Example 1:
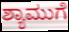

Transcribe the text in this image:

ಶ್ಯಾಮುಗೆ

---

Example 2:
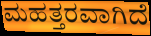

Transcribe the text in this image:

ಮಹತ್ತರವಾಗಿದೆ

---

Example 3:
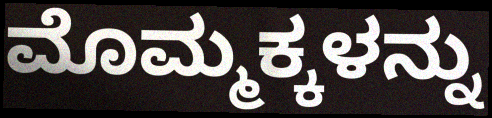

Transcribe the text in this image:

ಮೊಮ್ಮಕ್ಕಳನ್ನು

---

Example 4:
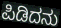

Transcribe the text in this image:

ಪಿಡಿದನು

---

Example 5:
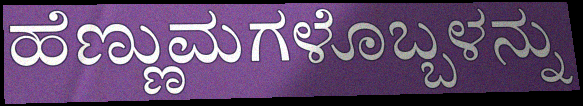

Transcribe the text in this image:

ಹೆಣ್ಣುಮಗಳೊಬ್ಬಳನ್ನು